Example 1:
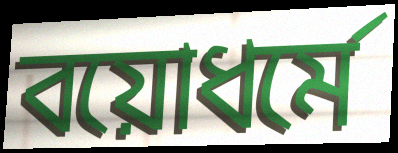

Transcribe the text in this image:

বয়োধর্মে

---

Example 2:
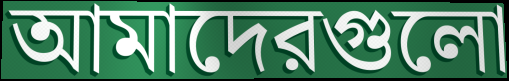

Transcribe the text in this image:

আমাদেরগুলো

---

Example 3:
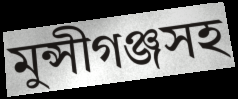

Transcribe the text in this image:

মুন্সীগঞ্জসহ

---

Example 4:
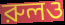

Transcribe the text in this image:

রুলও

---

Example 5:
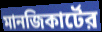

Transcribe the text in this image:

মানজিকার্টের